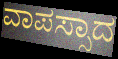
ವಾಪಸ್ಸಾದ